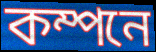
কম্পনে